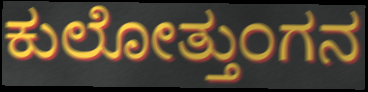
ಕುಲೋತ್ತುಂಗನ